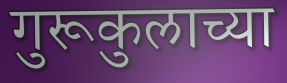
गुरूकुलाच्या